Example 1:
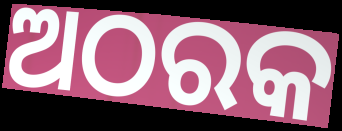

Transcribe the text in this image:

ଅଠରକ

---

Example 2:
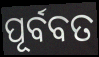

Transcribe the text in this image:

ପୂର୍ବବତ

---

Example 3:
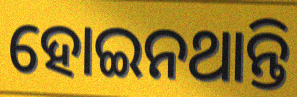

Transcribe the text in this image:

ହୋଇନଥାନ୍ତି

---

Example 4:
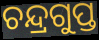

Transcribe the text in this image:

ଚନ୍ଦ୍ରଗୁପ୍ତ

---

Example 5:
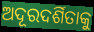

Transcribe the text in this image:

ଅଦୂରଦର୍ଶିତାକୁ